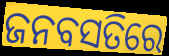
ଜନବସତିରେ